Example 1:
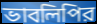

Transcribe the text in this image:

ভাবলিপির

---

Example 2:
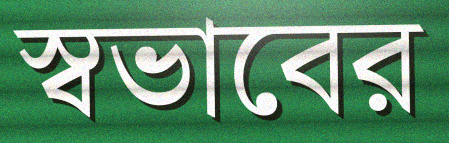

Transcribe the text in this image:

স্বভাবের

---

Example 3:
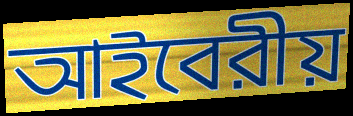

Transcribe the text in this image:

আইবেরীয়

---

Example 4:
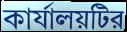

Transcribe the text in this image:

কার্যালয়টির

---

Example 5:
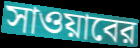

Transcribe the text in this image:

সাওয়াবের